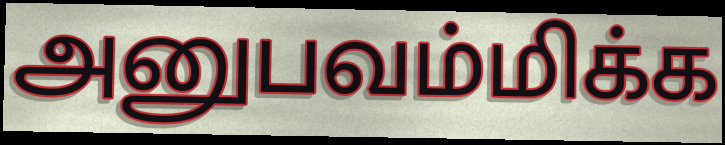
அனுபவம்மிக்க